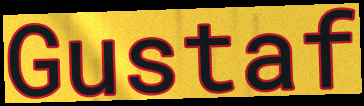
Gustaf